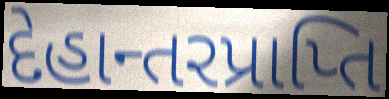
દેહાન્તરપ્રાપ્તિ